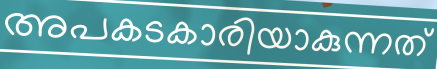
അപകടകാരിയാകുന്നത്